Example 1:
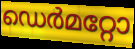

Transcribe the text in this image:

ഡെർമറ്റോ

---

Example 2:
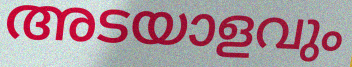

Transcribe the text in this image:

അടയാളവും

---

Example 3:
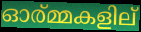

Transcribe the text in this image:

ഓര്മ്മകളില്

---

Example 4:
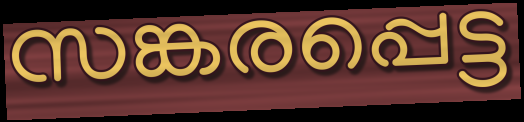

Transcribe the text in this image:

സങ്കരപ്പെട്ട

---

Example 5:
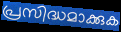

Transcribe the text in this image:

പ്രസിദ്ധമാക്കുക